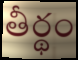
తీర్థం